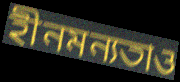
হীনমন্যতাও